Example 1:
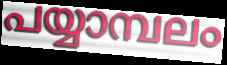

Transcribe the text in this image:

പയ്യാമ്പലം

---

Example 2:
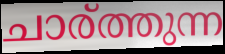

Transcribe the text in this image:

ചാര്ത്തുന്ന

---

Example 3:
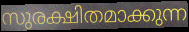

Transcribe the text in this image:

സുരക്ഷിതമാക്കുന്ന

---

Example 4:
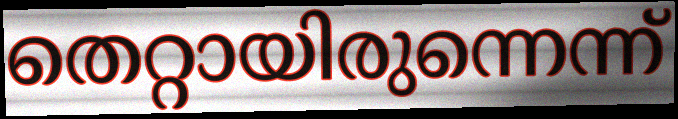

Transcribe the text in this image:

തെറ്റായിരുന്നെന്ന്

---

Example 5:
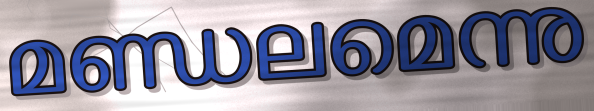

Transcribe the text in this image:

മണ്ഡലമെന്നു